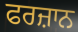
ਫਰਜ਼ਾਨ